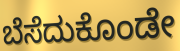
ಬೆಸೆದುಕೊಂಡೇ